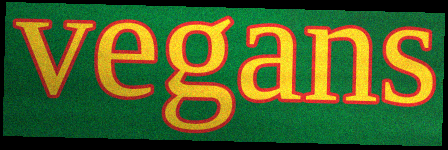
vegans